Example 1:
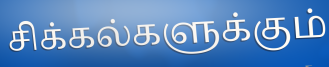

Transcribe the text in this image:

சிக்கல்களுக்கும்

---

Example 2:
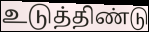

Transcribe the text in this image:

உடுத்திண்டு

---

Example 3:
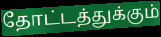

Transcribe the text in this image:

தோட்டத்துக்கும்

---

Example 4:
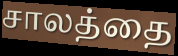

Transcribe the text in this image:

சாலத்தை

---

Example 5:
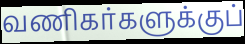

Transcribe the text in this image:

வணிகர்களுக்குப்